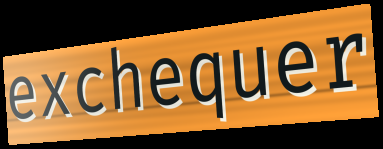
exchequer